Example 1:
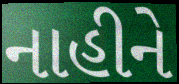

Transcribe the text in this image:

નાહીને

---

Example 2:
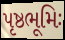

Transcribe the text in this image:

પૃષ્ઠભૂમિઃ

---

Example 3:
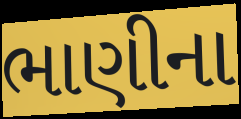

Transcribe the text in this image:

ભાણીના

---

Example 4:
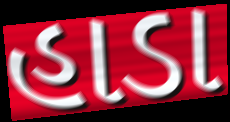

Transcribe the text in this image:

હાડા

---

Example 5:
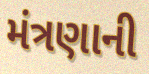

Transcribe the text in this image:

મંત્રણાની